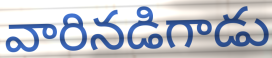
వారినడిగాడు